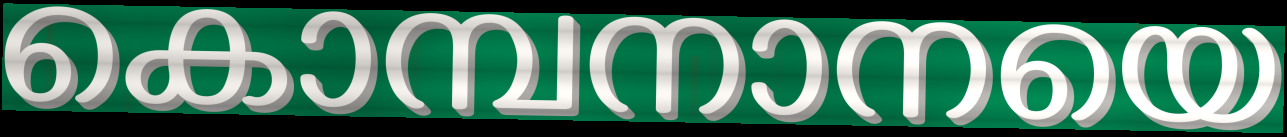
കൊമ്പനാനയെ